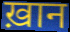
ख़ान